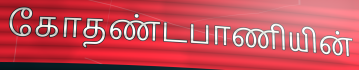
கோதண்டபாணியின்